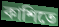
কাশিতে